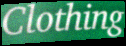
Clothing